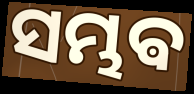
ସମ୍ଭଵ